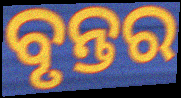
ବୃନ୍ତର